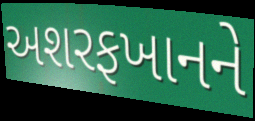
અશરફખાનને